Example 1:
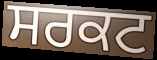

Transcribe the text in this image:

ਸਰਕਟ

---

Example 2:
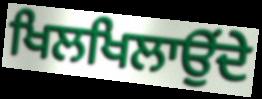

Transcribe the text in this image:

ਖਿਲਖਿਲਾਉਂਦੇ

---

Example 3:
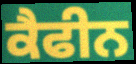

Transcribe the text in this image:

ਕੈਫੀਨ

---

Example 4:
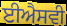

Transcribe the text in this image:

ਈਐਸਵੀ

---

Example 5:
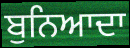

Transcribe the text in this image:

ਬੁਨਿਆਦਾ